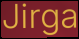
Jirga